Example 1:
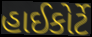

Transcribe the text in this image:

હાઈકોર્ટે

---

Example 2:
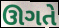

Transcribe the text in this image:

ઊગતે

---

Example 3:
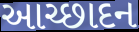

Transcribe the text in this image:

આચ્છાદન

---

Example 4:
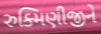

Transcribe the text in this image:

રુક્મિણીજીને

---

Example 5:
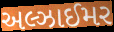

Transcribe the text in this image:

અલ્ઝાઈમર